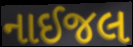
નાઈજલ